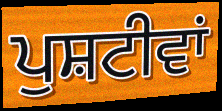
ਪੁਸ਼ਟੀਵਾਂ